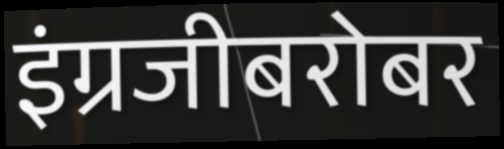
इंग्रजीबरोबर